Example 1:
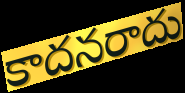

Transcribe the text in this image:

కాదనరాదు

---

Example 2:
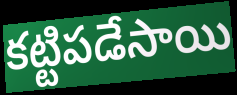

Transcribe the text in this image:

కట్టిపడేసాయి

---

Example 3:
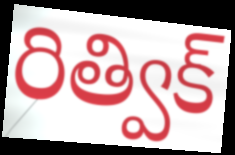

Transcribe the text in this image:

రిత్విక్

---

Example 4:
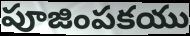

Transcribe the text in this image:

పూజింపకయు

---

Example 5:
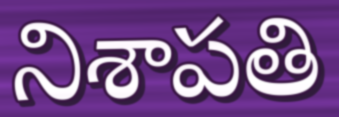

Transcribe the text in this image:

నిశాపతి